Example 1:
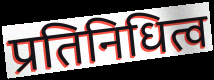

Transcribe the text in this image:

प्रतिनिधित्व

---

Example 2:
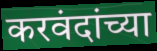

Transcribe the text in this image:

करवंदांच्या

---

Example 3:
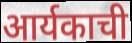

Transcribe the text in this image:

आर्यकाची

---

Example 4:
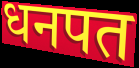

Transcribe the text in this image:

धनपत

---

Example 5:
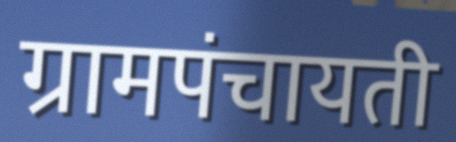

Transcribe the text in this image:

ग्रामपंचायती